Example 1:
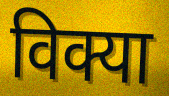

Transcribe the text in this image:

विक्या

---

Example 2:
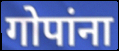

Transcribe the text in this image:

गोपांना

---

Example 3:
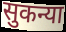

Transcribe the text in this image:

सुकन्या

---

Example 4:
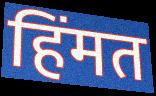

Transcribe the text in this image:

हिंमत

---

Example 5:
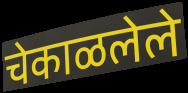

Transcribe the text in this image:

चेकाळलेले